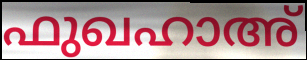
ഫുഖഹാഅ്